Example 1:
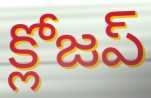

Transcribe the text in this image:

క్లోజప్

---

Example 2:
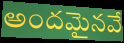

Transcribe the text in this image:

అందమైనవే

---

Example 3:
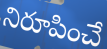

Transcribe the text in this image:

నిరూపించే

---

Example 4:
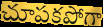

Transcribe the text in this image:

చూపకపోగా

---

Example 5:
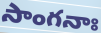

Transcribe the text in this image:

సాంగనాః